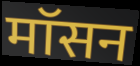
मॉसन